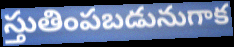
స్తుతింపబడునుగాక